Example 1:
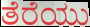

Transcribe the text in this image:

ತೆರೆಯು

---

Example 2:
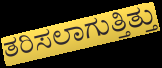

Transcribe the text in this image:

ತರಿಸಲಾಗುತ್ತಿತ್ತು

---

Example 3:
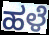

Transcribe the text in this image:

ಹಳೆ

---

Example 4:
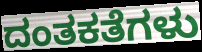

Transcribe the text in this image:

ದಂತಕತೆಗಳು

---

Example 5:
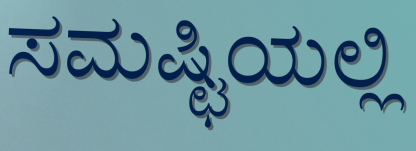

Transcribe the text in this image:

ಸಮಷ್ಟಿಯಲ್ಲಿ